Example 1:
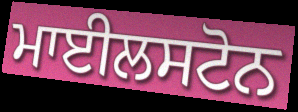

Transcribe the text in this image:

ਮਾਈਲਸਟੋਨ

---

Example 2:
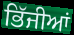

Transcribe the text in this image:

ਭਿੱਜੀਆਂ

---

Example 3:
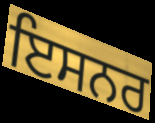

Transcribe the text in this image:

ਇਸਨਰ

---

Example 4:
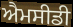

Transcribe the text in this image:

ਐਮਸੀਡੀ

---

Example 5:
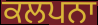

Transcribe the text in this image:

ਕਲਪਨਾ